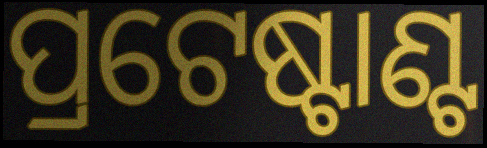
ପ୍ରଟେଷ୍ଟାଣ୍ଟ